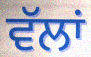
ਵੱਲਾਂ